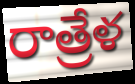
రాత్రేళ